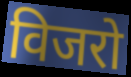
विजरो